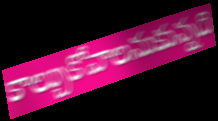
కాల్చుకోవాలనుకున్నది